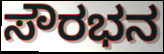
ಸೌರಭನ